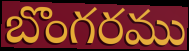
బొంగరము